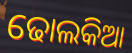
ଢୋଲକିଆ